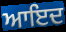
ਆਇਦ